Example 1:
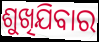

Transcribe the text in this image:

ଶୁଖିଯିବାର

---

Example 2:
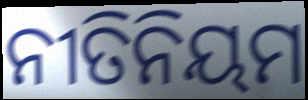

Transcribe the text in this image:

ନୀତିନିୟମ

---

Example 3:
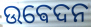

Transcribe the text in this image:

ଉଵେଦନ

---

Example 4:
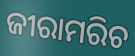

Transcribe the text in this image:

ଜୀରାମରିଚ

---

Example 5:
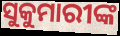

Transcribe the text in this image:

ସୁକୁମାରୀଙ୍କ